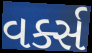
વર્ક્સ